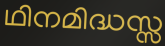
ഥിനമിദ്ധസ്സ